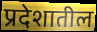
प्रदेशातील